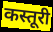
कस्तूरी